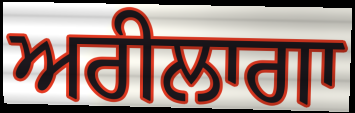
ਅਰੀਲਾਗਾ